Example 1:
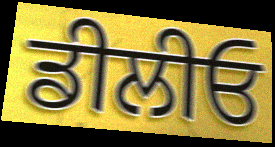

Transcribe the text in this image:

ਡੀਲੀਓ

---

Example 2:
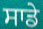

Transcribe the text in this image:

ਸਾਡੇ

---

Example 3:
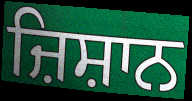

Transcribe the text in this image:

ਜ਼ਿਸ਼ਾਨ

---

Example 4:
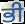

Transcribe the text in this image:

ਭੀ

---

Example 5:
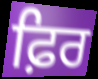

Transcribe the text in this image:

ਫ਼ਿਰ